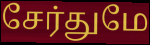
சேர்துமே